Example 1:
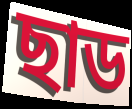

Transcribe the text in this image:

ছাড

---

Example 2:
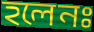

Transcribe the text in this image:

হলেনঃ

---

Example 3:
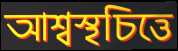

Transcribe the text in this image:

আশ্বস্থচিত্তে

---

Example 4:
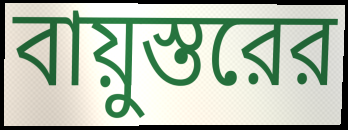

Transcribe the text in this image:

বায়ুস্তরের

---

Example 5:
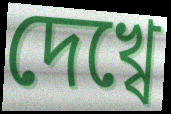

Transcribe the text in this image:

দেখ্বে